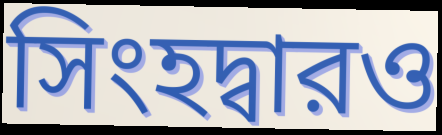
সিংহদ্বারও